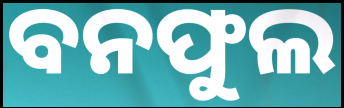
ବନଫୁଲ